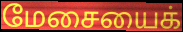
மேசையைக்